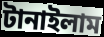
টানাইলাম